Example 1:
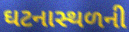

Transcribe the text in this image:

ઘટનાસ્થળની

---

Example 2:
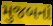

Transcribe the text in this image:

મુજબનાં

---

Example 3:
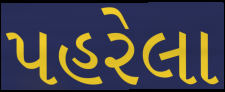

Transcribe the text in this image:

પહરેલા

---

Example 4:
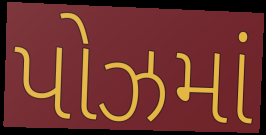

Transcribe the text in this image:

પોઝમાં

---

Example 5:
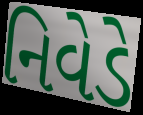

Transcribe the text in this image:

નિવેડે